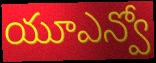
యూఎన్వో